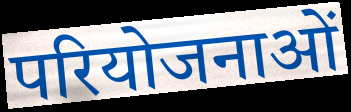
परियोजनाओं